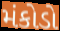
મંકોડો